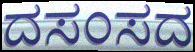
ದಸಂಸದ